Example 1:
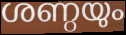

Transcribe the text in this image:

ശണ്ഠയും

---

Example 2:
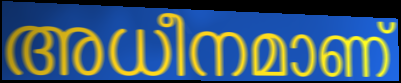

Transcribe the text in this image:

അധീനമാണ്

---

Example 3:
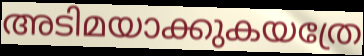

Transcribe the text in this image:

അടിമയാക്കുകയത്രേ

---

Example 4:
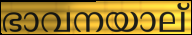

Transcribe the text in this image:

ഭാവനയാല്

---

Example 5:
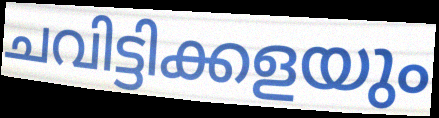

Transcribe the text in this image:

ചവിട്ടിക്കളയും